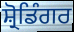
ਸ਼੍ਰੋਡਿੰਗਰ